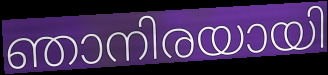
ഞാനിരയായി